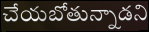
చేయబోతున్నాడని